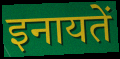
इनायतें